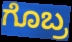
ಗೊಬ್ರ